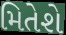
મિતેશે